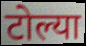
टोल्या